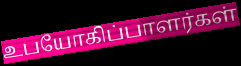
உபயோகிப்பாளர்கள்